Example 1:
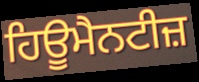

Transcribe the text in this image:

ਹਿਊਮੈਨਟੀਜ਼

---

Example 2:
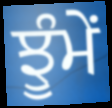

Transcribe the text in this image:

ਝੂੰਮੇਂ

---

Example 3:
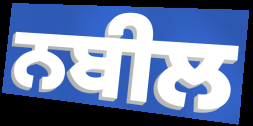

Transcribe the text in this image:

ਨਬੀਲ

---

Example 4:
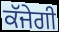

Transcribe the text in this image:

ਕੱਜੇਗੀ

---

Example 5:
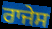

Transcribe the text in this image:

ਰਾਜੇਸ